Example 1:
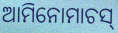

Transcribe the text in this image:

ଆମିନୋମାଚସ୍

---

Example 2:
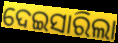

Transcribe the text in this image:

ଦେଇସାରିଲା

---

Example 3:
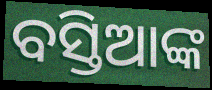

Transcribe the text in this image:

ବସ୍ତିଆଙ୍କ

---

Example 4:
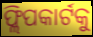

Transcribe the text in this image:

ଫ୍ଲିପକାର୍ଟକୁ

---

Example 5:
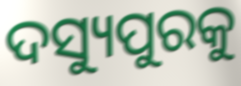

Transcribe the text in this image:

ଦସ୍ୟୁପୁରକୁ